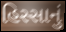
હિસ્સાનું